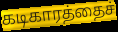
கடிகாரத்தைச்